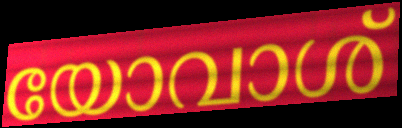
യോവാശ്